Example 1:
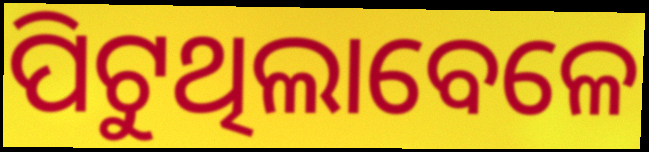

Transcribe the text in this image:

ପିଟୁଥିଲାବେଳେ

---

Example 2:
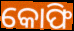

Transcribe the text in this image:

କୋଫି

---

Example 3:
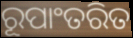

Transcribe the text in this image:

ରୂପାଂତରିତ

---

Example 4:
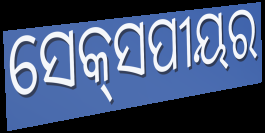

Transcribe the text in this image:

ସେକ୍‌ସପୀୟର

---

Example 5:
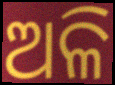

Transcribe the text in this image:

ଅଳି